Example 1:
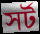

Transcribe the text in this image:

সর্ট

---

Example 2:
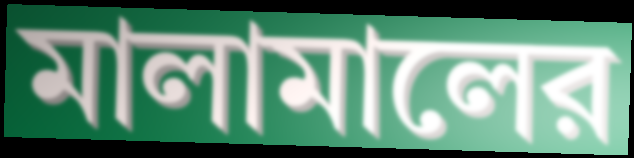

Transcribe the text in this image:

মালামালের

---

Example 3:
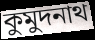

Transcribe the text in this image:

কুমুদনাথ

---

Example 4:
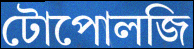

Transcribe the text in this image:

টোপোলজি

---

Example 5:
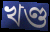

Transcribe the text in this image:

খণ্ড